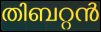
തിബറ്റൻ